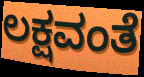
ಲಕ್ಷವಂತೆ